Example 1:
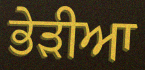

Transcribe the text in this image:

ਭੇੜੀਆ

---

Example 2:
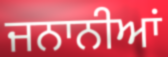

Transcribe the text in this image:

ਜਨਾਨੀਆਂ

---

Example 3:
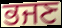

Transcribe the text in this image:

ਭਜਣ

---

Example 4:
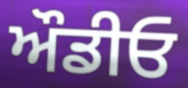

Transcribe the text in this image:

ਔਡੀਓ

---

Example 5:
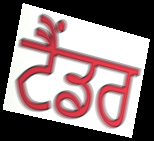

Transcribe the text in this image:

ਟੈਂਡਰ